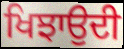
ਖਿਝਾਉਦੀ